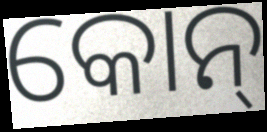
କୋନ୍